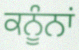
ਕਨੂੰਨਾਂ